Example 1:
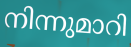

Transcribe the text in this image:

നിന്നുമാറി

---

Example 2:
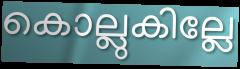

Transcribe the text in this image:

കൊല്ലുകില്ലേ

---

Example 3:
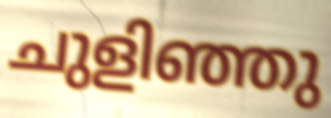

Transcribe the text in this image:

ചുളിഞ്ഞു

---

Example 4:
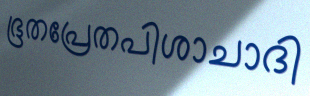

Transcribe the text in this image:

ഭൂതപ്രേതപിശാചാദി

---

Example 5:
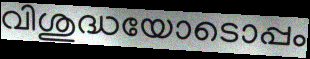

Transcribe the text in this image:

വിശുദ്ധയോടൊപ്പം